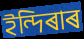
ইন্দিৰাৰ